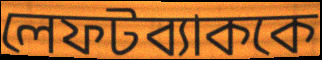
লেফটব্যাককে